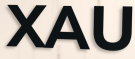
XAU